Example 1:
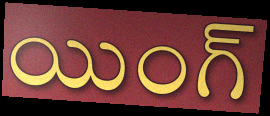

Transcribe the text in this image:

యింగ్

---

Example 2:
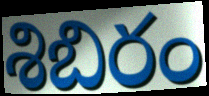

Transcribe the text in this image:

శిబిరం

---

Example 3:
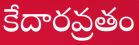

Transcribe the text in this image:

కేదారవ్రతం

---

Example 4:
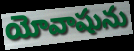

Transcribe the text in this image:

యోవాషును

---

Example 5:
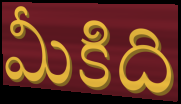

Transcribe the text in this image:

మీకిది